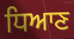
ਧਿਆਣ